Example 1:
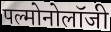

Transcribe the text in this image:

पल्मोनोलॉजी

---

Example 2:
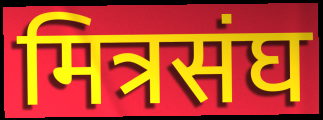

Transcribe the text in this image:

मित्रसंघ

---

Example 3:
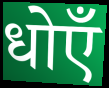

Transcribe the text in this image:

धोएँ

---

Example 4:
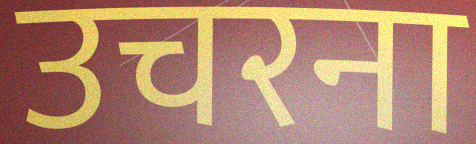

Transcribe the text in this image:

उचरना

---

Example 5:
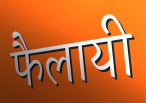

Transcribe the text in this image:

फैलायी